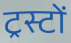
ट्रस्टों